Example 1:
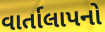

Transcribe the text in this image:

વાર્તાલાપનો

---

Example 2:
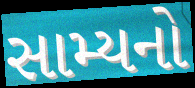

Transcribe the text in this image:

સામ્યનો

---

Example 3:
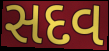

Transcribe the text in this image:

સદવ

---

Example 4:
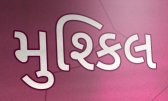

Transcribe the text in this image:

મુશ્કિલ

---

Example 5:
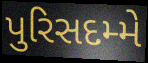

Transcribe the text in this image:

પુરિસદમ્મે